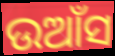
ଉଆଁସ